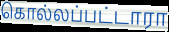
கொல்லப்பட்டாரா